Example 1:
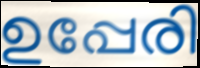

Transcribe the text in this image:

ഉപ്പേരി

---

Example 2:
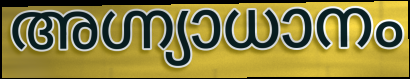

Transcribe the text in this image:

അഗ്ന്യാധാനം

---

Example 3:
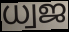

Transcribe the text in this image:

ധ്വജ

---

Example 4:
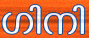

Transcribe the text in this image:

ഗിനി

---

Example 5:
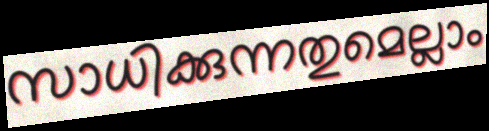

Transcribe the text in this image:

സാധിക്കുന്നതുമെല്ലാം